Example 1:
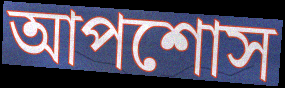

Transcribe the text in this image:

আপশোস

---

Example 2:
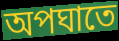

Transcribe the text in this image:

অপঘাতে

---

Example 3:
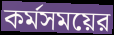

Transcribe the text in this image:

কর্মসময়ের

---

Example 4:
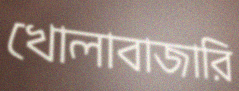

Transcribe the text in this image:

খোলাবাজারি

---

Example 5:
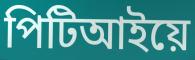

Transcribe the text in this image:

পিটিআইয়ে